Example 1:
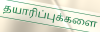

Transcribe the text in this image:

தயாரிப்புக்களை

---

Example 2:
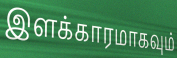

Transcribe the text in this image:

இளக்காரமாகவும்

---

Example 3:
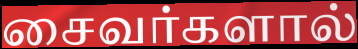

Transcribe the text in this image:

சைவர்களால்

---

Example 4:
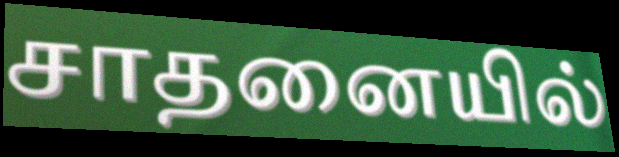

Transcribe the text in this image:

சாதனையில்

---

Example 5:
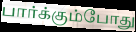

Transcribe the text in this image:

பார்க்கும்போது